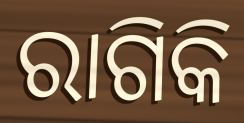
ରାଗିକି